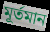
মূৰ্তমান